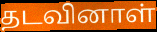
தடவினாள்